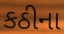
કઠીના